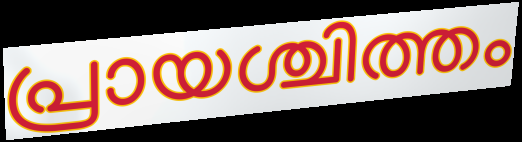
പ്രായശ്ചിത്തം